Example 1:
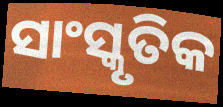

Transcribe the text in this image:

ସାଂସ୍କୃତିକ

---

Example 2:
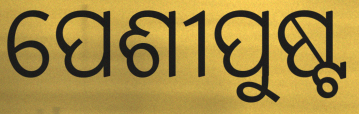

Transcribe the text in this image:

ପେଶୀପୁଷ୍ଟ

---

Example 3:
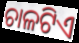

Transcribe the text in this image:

ଚାଳଟିଏ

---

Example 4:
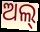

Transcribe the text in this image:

ଅଲ୍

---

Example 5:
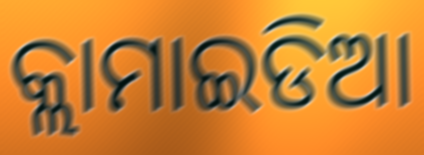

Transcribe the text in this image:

କ୍ଲାମାଇଡିଆ